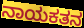
ನಾಯಕತನ